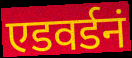
एडवर्डनं